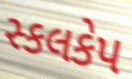
સ્કલકેપ